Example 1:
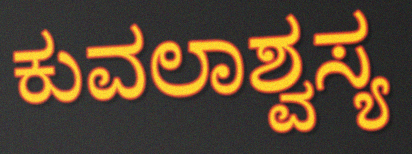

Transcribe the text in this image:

ಕುವಲಾಶ್ವಸ್ಯ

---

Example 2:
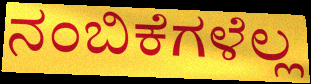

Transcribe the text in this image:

ನಂಬಿಕೆಗಳೆಲ್ಲ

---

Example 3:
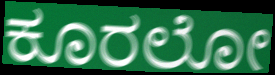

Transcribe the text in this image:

ಕೂರಲೋ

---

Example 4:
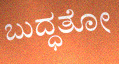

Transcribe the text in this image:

ಬುದ್ಧತೋ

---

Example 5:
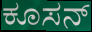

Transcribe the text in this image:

ಕೂಸನ್